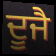
ਦੂਜੈ